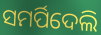
ସମର୍ପିଦେଲି